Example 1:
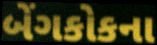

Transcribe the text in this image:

બેંગકોકના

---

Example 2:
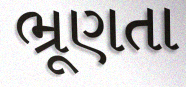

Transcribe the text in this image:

ભ્રૂણતા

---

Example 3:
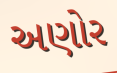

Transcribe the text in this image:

અણોર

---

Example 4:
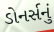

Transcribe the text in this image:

ડોનર્સનું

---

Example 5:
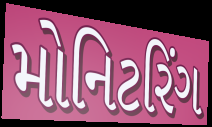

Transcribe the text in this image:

મોનિટરિંગ